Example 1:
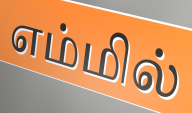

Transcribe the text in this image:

எம்மில்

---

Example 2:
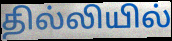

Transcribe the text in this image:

தில்லியில்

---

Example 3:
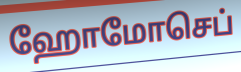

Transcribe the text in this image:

ஹோமோசெப்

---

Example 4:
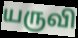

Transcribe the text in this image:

யருவி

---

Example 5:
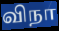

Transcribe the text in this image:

விநா